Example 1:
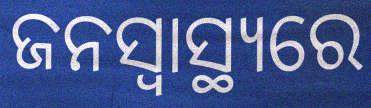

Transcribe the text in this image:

ଜନସ୍ବାସ୍ଥ୍ୟରେ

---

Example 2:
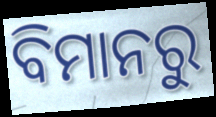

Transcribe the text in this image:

ବିମାନରୁ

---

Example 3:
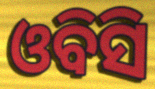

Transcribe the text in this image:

ଓବିସି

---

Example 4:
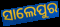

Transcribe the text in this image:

ସାଲେପୁର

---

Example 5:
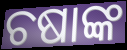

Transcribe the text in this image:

ଚଷାଙ୍କ